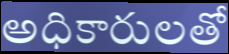
అధికారులతో